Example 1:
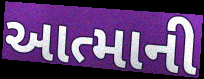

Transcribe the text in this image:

આત્માની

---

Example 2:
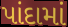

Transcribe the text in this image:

પાંદામાં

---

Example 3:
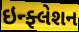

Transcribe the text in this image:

ઇન્ફ્લેશન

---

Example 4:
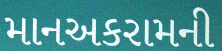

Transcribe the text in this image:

માનઅકરામની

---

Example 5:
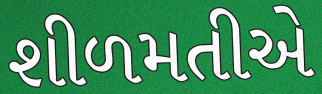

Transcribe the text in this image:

શીળમતીએ